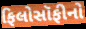
ફિલોસૉફીનો